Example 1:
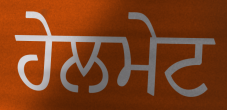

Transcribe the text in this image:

ਹੇਲਮੇਟ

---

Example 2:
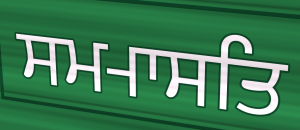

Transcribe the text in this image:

ਸਮ੍ਮਾਸਤਿ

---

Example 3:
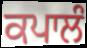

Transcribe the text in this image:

ਕਪਾਲੰ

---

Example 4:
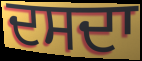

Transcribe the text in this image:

ਦਸਦਾ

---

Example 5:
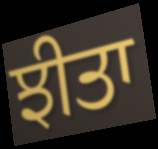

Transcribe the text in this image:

ਝੀਤਾ